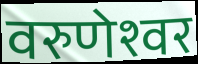
वरुणेश्वर